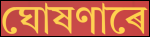
ঘোষণাৰে